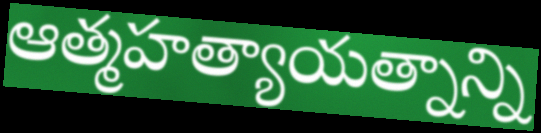
ఆత్మహత్యాయత్నాన్ని